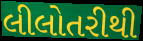
લીલોતરીથી